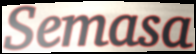
Semasa